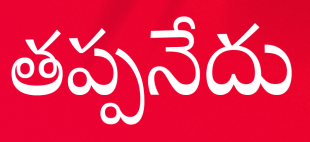
తప్పనేదు